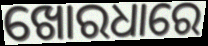
ଖୋରଧାରେ